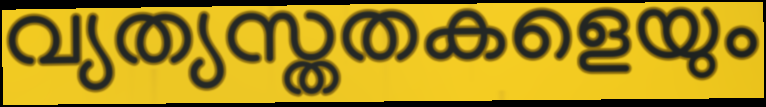
വ്യത്യസ്തതകളെയും